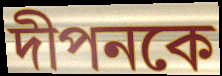
দীপনকে